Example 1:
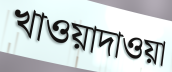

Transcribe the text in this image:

খাওয়াদাওয়া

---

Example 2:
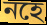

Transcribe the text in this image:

নহে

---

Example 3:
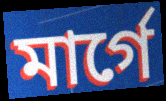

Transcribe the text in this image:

মার্গে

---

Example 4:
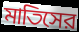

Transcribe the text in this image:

মাতিসের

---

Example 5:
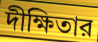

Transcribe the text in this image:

দীক্ষিতার